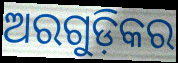
ଅରଗୁଡ଼ିକର